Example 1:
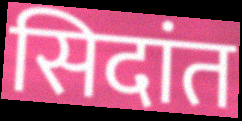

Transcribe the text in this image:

सिदांत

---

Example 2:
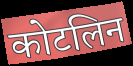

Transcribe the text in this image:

कोटलिन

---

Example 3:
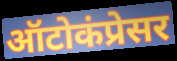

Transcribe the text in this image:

ऑटोकंप्रेसर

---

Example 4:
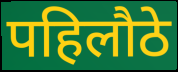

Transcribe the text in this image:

पहिलौठे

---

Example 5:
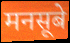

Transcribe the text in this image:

मनसूबे